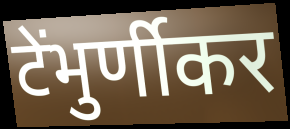
टेंभुर्णीकर